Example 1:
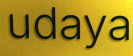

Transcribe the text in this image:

udaya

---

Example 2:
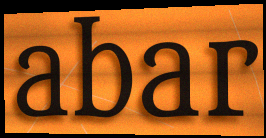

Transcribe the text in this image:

abar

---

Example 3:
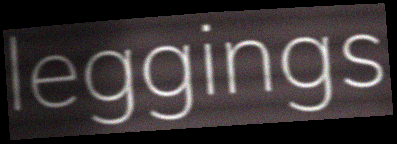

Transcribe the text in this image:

leggings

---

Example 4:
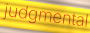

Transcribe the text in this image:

judgmental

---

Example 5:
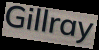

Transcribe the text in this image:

Gillray